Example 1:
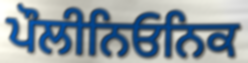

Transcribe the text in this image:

ਪੌਲੀਨਿਓਨਿਕ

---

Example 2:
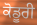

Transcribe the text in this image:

ਕੋਡੂਰੀ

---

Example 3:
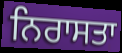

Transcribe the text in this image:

ਨਿਰਾਸਤਾ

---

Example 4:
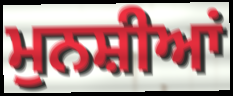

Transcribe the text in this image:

ਮੁਨਸ਼ੀਆਂ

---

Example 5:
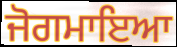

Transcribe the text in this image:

ਜੋਗਮਾਇਆ